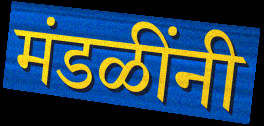
मंडळींनी